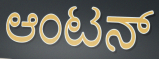
ಆಂಟನ್